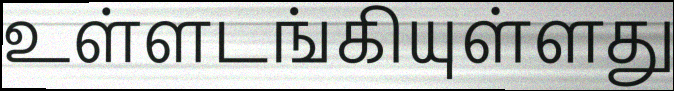
உள்ளடங்கியுள்ளது